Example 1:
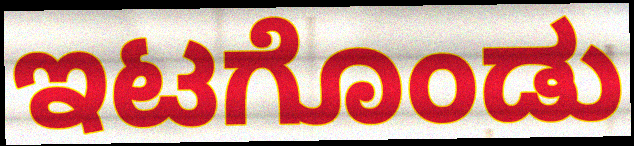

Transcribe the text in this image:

ಇಟಗೊಂಡು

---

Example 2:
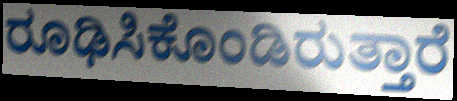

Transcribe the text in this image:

ರೂಢಿಸಿಕೊಂಡಿರುತ್ತಾರೆ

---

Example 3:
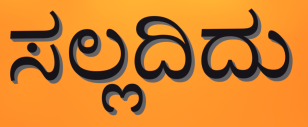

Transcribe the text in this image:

ಸಲ್ಲದಿದು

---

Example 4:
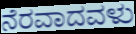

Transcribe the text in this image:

ನೆರವಾದವಳು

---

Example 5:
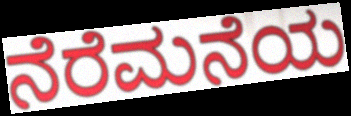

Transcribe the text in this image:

ನೆರೆಮನೆಯ